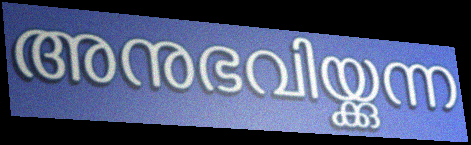
അനുഭവിയ്ക്കുന്ന